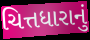
ચિત્તધારાનું